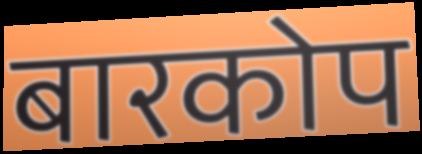
बारकोप